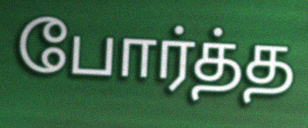
போர்த்த